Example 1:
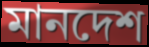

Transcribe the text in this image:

মানদেশ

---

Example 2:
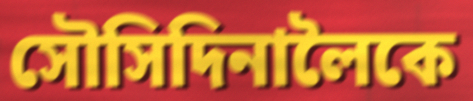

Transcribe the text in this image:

সৌসিদিনালৈকে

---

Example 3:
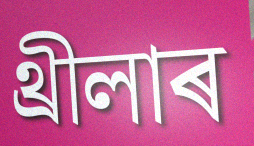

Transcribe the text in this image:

থ্ৰীলাৰ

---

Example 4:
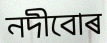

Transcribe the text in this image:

নদীবোৰ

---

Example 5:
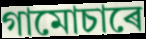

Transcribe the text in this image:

গামোচাৰে